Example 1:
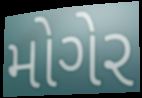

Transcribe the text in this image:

મોગેર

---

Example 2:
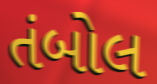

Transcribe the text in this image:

તંબોલ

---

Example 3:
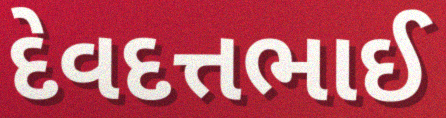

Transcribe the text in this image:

દેવદત્તભાઈ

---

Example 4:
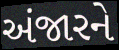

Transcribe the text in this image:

અંજારને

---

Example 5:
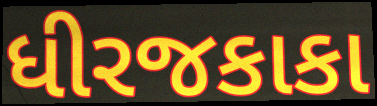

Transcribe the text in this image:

ધીરજકાકા